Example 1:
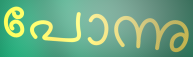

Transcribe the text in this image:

പോന്നു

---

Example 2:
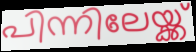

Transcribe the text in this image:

പിന്നിലേയ്ക്ക്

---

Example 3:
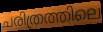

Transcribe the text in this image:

ചരിത്രത്തിലെ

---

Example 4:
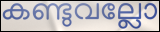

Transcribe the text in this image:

കണ്ടുവല്ലോ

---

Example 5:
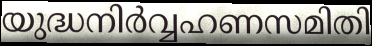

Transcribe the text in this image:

യുദ്ധനിർവ്വഹണസമിതി